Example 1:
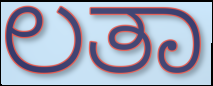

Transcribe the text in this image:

ಲತಾ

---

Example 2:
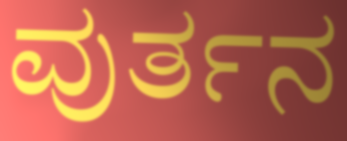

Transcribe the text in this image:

ವುರ್ತನ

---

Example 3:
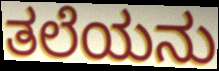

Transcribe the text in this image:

ತಲೆಯನು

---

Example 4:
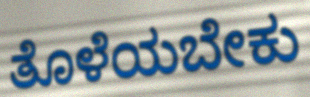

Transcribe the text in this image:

ತೊಳೆಯಬೇಕು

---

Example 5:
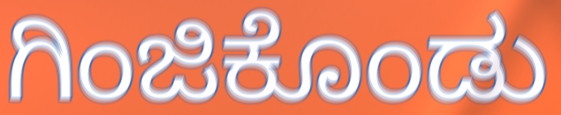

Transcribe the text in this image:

ಗಿಂಜಿಕೊಂಡು